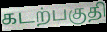
கடற்பகுதி